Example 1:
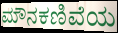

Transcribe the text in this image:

ಮೌನಕಣಿವೆಯ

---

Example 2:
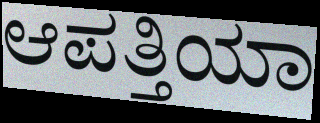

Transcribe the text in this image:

ಆಪತ್ತಿಯಾ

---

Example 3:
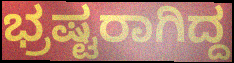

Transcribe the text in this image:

ಭ್ರಷ್ಟರಾಗಿದ್ದ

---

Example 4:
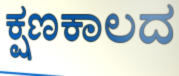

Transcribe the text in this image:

ಕ್ಷಣಕಾಲದ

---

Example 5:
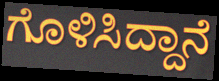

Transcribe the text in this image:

ಗೊಳಿಸಿದ್ದಾನೆ